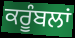
ਕਰੂੰਬਲਾਂ